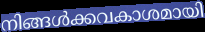
നിങ്ങൾക്കവകാശമായി